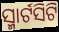
ସ୍ମାର୍ଟସିଟି